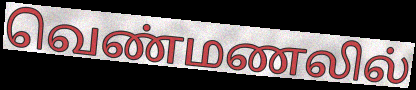
வெண்மணலில்